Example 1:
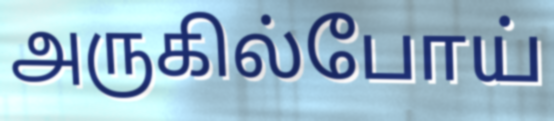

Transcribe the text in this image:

அருகில்போய்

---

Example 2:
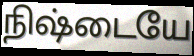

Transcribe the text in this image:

நிஷ்டையே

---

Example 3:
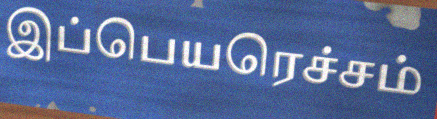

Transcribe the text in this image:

இப்பெயரெச்சம்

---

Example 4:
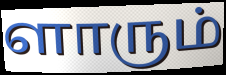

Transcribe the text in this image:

ளாரும்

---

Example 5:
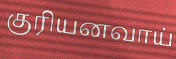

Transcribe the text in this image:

குரியனவாய்